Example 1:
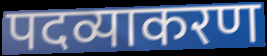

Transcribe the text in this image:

पदव्याकरण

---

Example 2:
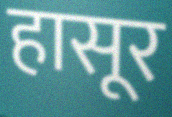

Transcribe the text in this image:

हासूर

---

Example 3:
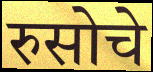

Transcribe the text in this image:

रुसोचे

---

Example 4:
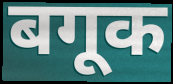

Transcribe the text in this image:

बगूक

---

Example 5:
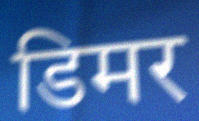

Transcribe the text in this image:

डिमर